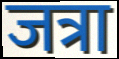
जत्रा